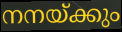
നനയ്ക്കും